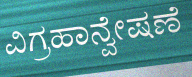
ವಿಗ್ರಹಾನ್ವೇಷಣೆ